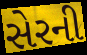
સેરની